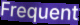
Frequent